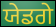
ਯੇਡਗੇ